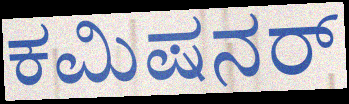
ಕಮಿಷನರ್